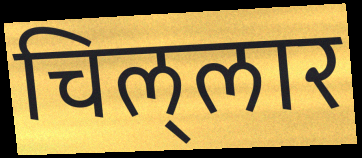
चिल्लार